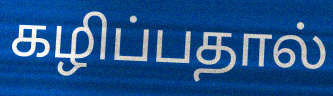
கழிப்பதால்